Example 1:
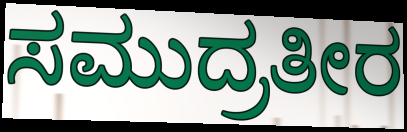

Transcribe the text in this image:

ಸಮುದ್ರತೀರ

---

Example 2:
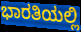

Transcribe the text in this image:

ಭಾರತಿಯಲ್ಲಿ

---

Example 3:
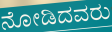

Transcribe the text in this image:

ನೋಡಿದವರು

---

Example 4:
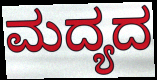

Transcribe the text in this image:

ಮದ್ಯದ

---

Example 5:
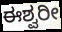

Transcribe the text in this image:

ಈಶ್ವರೀ